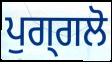
ਪੁਗ੍ਗਲੋ